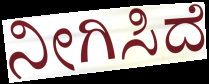
ನೀಗಿಸಿದೆ